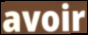
avoir